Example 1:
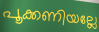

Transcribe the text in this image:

പൂക്കണിയല്ലേ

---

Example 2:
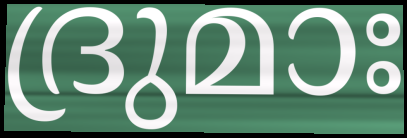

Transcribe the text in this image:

ദ്രുമാഃ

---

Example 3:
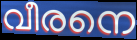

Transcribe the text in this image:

വീരനെ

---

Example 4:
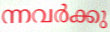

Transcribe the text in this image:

ന്നവർക്കു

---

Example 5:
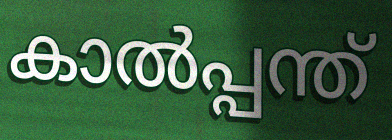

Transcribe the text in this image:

കാൽപ്പന്ത്